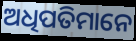
ଅଧିପତିମାନେ